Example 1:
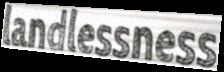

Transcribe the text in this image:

landlessness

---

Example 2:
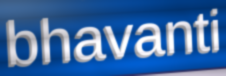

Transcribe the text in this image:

bhavanti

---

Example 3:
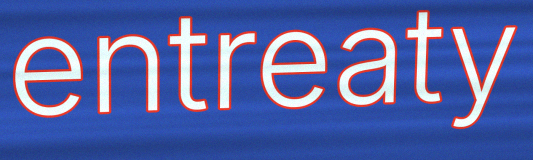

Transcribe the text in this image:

entreaty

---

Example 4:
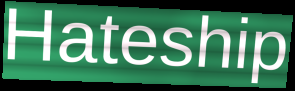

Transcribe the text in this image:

Hateship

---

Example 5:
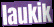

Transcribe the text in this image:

laukik